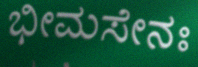
ಭೀಮಸೇನಃ